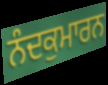
ਨੰਦਕੁਮਾਰਨ